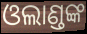
ଓଲାଣ୍ଡଙ୍କ